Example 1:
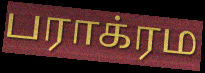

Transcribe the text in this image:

பராக்ரம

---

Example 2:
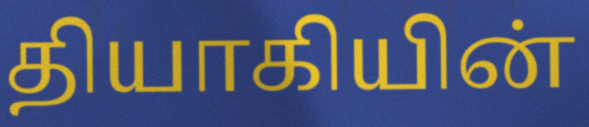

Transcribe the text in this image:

தியாகியின்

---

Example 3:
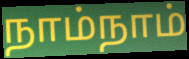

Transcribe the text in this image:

நாம்நாம்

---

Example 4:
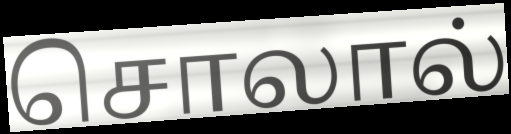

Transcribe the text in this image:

சொலால்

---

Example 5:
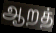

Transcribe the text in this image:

ஆறத்